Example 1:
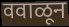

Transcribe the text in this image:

ववाळून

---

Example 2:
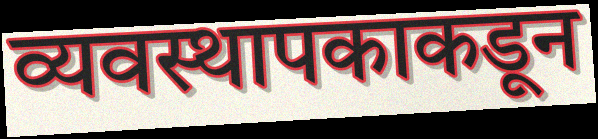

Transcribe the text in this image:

व्यवस्थापकाकडून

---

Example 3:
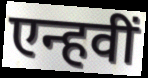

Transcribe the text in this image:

एन्हवीं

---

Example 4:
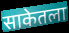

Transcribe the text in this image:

साकेतला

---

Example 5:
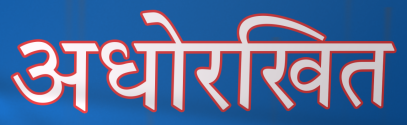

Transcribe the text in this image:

अधोरखित